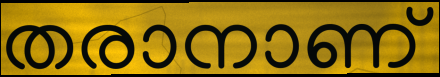
തരാനാണ്